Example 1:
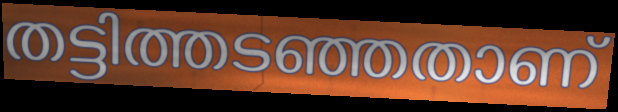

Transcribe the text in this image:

തട്ടിത്തടഞ്ഞതാണ്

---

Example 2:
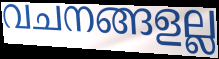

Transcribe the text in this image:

വചനങ്ങളല്ല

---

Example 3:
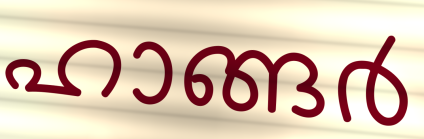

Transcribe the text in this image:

ഹാങ്ങർ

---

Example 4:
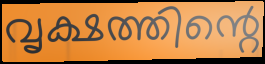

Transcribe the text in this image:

വൃക്ഷത്തിന്റെ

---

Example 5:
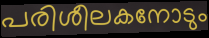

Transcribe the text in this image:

പരിശീലകനോടും